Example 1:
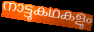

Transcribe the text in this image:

നാട്ടുകഥകളും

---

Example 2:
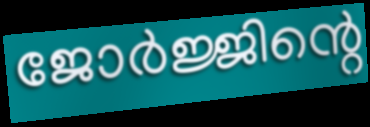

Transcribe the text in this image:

ജോർജ്ജിന്റെ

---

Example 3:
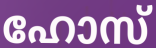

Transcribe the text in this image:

ഹോസ്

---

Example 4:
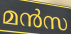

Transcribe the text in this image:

മൻസ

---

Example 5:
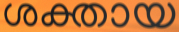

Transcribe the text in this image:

ശക്തായ